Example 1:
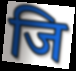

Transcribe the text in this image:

जि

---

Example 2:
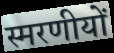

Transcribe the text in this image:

स्मरणीयों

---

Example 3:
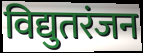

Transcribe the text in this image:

विद्युतरंजन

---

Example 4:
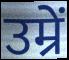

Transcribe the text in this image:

उम्रें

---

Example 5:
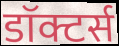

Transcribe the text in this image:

डॉक्टर्स